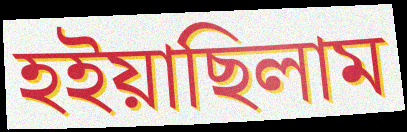
হইয়াছিলাম